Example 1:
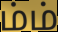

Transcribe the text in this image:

ம்ம்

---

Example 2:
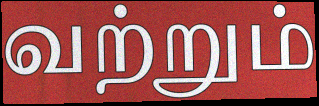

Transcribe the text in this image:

வற்றும்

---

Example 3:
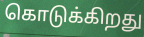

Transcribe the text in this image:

கொடுக்கிறது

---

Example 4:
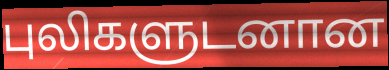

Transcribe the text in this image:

புலிகளுடனான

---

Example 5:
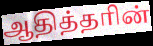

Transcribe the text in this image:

ஆதித்தரின்